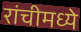
रांचीमध्ये